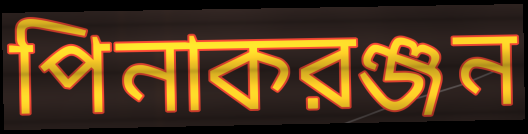
পিনাকরঞ্জন